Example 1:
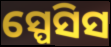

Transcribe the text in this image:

ସ୍ପେସିସ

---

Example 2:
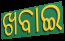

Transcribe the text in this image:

ଖବାଇ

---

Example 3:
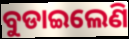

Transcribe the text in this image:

ବୁଡାଇଲେଣି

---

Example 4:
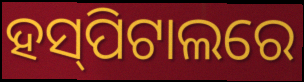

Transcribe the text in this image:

ହସ୍‍ପିଟାଲରେ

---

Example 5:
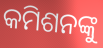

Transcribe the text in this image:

କମିଶନଙ୍କୁ